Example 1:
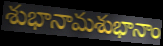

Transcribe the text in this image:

శుభానామశుభానాం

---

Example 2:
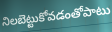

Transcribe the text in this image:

నిలబెట్టుకోవడంతోపాటు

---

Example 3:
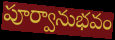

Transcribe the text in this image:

పూర్వానుభవం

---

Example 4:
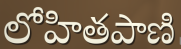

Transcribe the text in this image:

లోహితపాణి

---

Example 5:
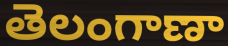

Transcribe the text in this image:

తెలంగాణా